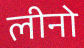
लीनो